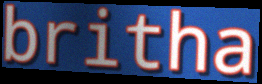
britha